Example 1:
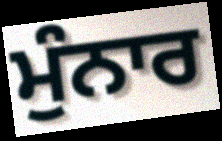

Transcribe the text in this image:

ਮੁੰਨਾਰ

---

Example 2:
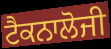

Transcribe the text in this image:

ਟੈਕਨਾਲੋਜੀ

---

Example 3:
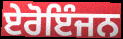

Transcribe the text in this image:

ਏਰੋਇੰਜਨ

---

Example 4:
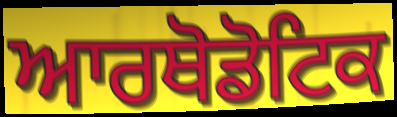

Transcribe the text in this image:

ਆਰਥੋਡੋਟਿਕ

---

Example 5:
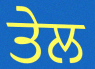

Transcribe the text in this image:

ਤੇਲ